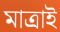
মাত্ৰাই